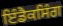
ਇੰਡੈਕਸਿੰਗ